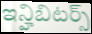
ఇన్హిబిటర్స్